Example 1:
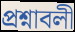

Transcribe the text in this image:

প্রশ্নাবলী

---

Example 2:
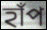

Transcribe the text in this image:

হাঁপ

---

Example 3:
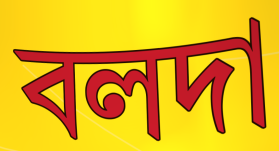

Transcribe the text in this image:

বলদা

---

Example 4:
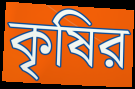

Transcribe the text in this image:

কৃষির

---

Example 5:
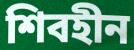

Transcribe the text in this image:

শিবহীন